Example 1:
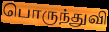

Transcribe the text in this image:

பொருந்துவி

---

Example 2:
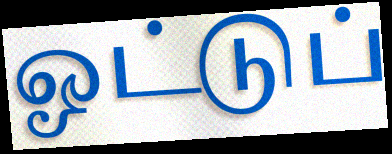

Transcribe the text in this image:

ஓட்டுப்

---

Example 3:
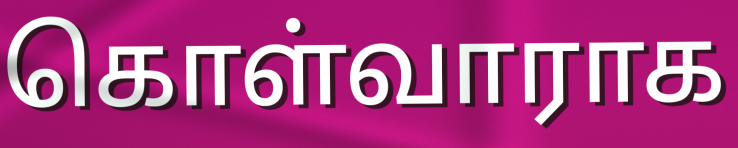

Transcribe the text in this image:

கொள்வாராக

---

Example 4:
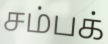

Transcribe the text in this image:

சம்பக்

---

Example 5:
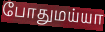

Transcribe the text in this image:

போதுமய்யா